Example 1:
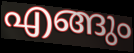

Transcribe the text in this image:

എങ്ങും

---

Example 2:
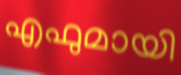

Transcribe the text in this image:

എഫുമായി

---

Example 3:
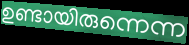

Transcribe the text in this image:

ഉണ്ടായിരുന്നെന്ന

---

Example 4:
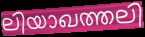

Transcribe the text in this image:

ലിയാഖത്തലി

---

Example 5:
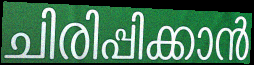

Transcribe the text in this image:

ചിരിപ്പിക്കാൻ